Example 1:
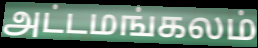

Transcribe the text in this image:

அட்டமங்கலம்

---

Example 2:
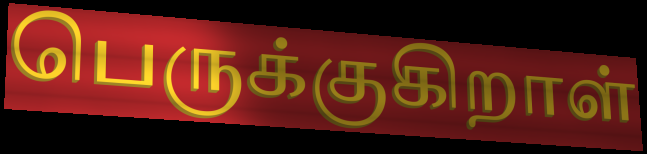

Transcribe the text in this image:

பெருக்குகிறாள்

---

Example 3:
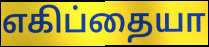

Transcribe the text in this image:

எகிப்தையா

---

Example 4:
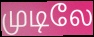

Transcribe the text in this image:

முடிலே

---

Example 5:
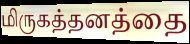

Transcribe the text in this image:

மிருகத்தனத்தை